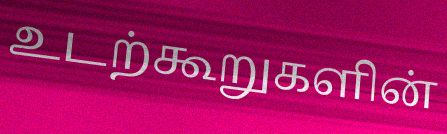
உடற்கூறுகளின்